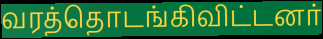
வரத்தொடங்கிவிட்டனர்